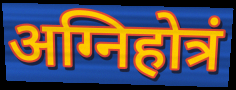
अग्निहोत्रं